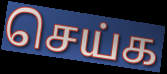
செய்க